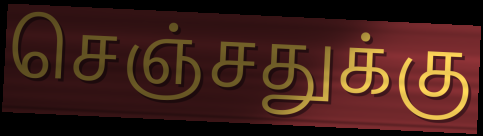
செஞ்சதுக்கு